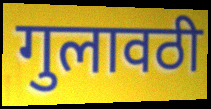
गुलावठी